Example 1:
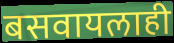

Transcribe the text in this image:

बसवायलाही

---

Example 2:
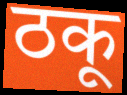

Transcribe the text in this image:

ठकू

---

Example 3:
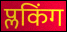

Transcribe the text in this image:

प्लकिंग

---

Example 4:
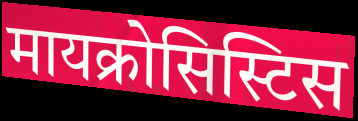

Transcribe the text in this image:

मायक्रोसिस्टिस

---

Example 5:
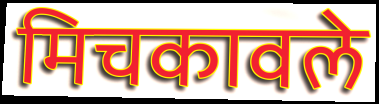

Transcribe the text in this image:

मिचकावले